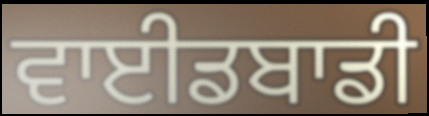
ਵਾਈਡਬਾਡੀ